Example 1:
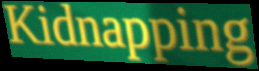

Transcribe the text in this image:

Kidnapping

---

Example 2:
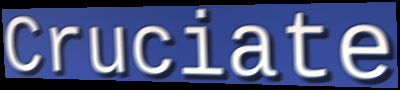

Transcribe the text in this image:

Cruciate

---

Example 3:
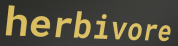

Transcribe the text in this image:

herbivore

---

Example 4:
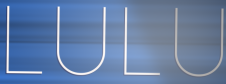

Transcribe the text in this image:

LULU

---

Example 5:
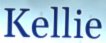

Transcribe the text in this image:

Kellie